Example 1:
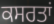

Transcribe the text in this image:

ਕਸਰਤਾਂ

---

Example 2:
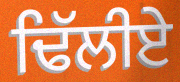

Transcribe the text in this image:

ਢਿੱਲੀਏ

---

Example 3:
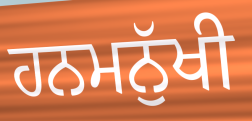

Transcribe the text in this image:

ਹਨਮਨੁੱਖੀ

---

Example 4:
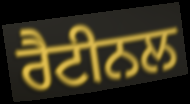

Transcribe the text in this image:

ਰੈਟੀਨਲ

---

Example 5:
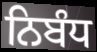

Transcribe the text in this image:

ਨਿਬੰਧ